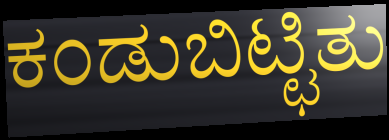
ಕಂಡುಬಿಟ್ಟಿತು